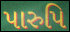
પારુપિ